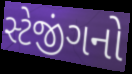
સ્ટેજીંગનો